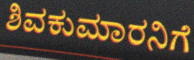
ಶಿವಕುಮಾರನಿಗೆ